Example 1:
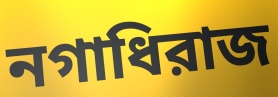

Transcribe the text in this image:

নগাধিরাজ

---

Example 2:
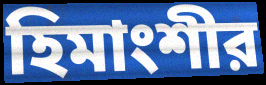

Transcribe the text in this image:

হিমাংশীর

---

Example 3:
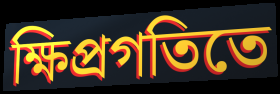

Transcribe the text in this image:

ক্ষিপ্রগতিতে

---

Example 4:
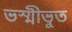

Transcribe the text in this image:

ভস্মীভুত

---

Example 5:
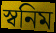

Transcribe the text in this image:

স্বনিম